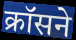
क्रॉसने